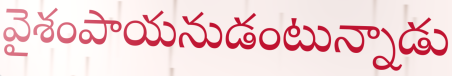
వైశంపాయనుడంటున్నాడు